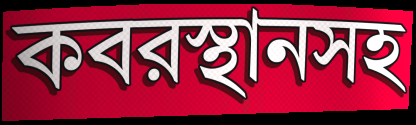
কবরস্থানসহ